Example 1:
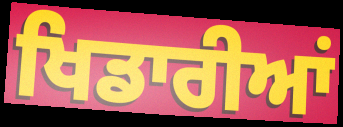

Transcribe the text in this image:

ਖਿਡਾਰੀਆਂ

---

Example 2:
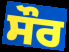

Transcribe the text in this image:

ਸੌਰ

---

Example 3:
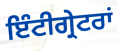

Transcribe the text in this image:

ਇੰਟੀਗ੍ਰੇਟਰਾਂ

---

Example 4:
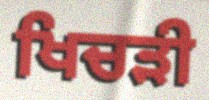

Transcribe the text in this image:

ਖਿਚੜੀ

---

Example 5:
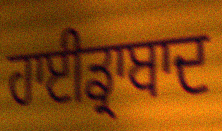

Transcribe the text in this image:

ਹਾਈਡ੍ਰਾਬਾਦ